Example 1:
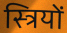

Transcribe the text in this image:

स्‍त्रियों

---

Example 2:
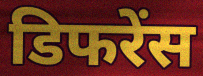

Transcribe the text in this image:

डिफरेंस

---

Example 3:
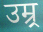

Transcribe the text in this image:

उम्र्र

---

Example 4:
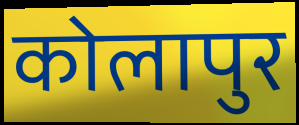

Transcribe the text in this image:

कोलापुर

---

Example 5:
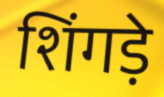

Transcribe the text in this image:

शिंगड़े